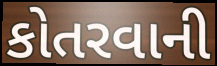
કોતરવાની